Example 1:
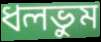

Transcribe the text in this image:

ধলভুম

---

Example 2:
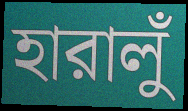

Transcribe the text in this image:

হারালুঁ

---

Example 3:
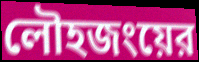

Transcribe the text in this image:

লৌহজংয়ের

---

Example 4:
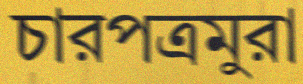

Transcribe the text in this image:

চারপত্রমুরা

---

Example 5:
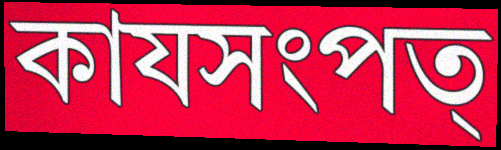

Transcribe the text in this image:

কাযসংপত্